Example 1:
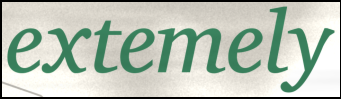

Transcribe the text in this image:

extemely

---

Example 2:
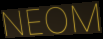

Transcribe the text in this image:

NEOM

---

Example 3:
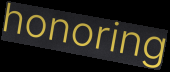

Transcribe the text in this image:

honoring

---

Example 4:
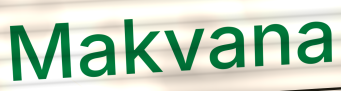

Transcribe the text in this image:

Makvana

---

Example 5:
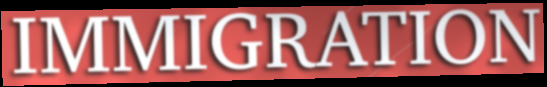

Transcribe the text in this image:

IMMIGRATION